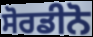
ਸੋਰਡੀਨੋ